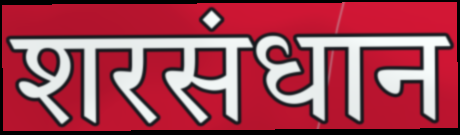
शरसंधान